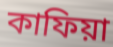
কাফিয়া